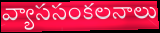
వ్యాససంకలనాలు